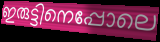
ഇരുട്ടിനെപ്പോലെ